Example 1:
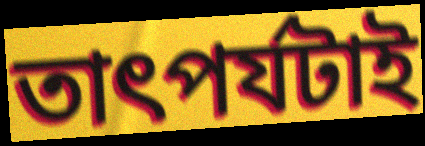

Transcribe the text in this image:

তাৎপর্যটাই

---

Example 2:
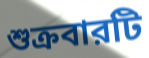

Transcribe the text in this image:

শুক্রবারটি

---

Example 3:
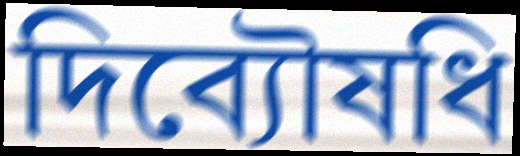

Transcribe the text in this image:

দিব্যৌষধি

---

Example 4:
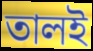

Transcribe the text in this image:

তালই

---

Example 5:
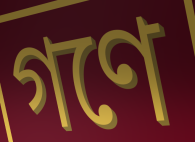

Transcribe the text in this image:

গণে